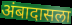
अंबादासला